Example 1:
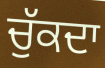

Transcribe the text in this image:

ਚੁੱਕਦਾ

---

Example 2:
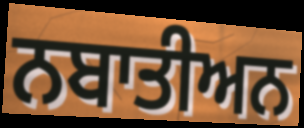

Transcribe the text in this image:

ਨਬਾਤੀਅਨ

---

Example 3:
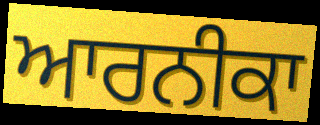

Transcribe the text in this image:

ਆਰਨੀਕਾ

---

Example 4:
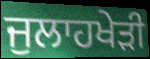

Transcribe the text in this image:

ਜੁਲਾਹਖੇੜੀ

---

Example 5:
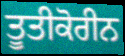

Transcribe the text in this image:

ਤੂਤੀਕੋਰੀਨ